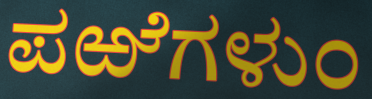
ಪಱೆಗಳುಂ